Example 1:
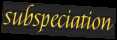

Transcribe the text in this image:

subspeciation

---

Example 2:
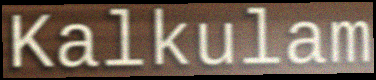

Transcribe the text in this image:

Kalkulam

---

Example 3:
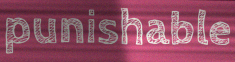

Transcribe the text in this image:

punishable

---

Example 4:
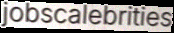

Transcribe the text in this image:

jobscalebrities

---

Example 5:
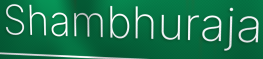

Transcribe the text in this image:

Shambhuraja